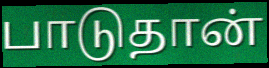
பாடுதான்